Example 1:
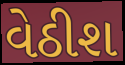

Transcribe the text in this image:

વેઠીશ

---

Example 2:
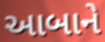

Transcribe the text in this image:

આબાને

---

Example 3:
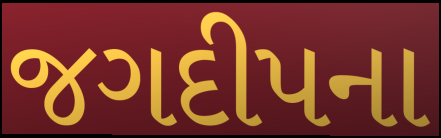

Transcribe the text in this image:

જગદીપના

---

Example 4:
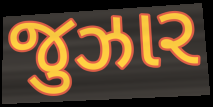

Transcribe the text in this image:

જુઝાર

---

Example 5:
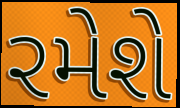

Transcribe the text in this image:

રમેશે